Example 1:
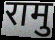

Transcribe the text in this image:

रामु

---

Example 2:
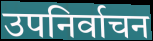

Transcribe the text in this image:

उपनिर्वाचन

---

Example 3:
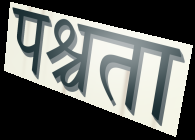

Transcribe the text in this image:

पश्चता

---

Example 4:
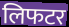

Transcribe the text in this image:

लिफटर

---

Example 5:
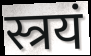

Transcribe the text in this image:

स्त्रयं